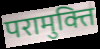
परामुक्ति